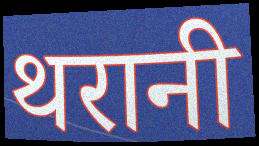
थरानी